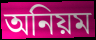
অনিয়ম